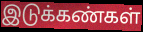
இடுக்கண்கள்